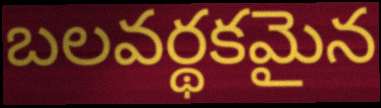
బలవర్థకమైన